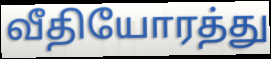
வீதியோரத்து